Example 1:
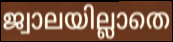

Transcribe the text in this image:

ജ്വാലയില്ലാതെ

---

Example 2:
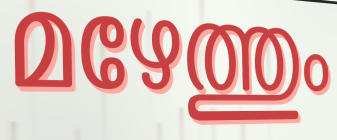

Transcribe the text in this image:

മഴേത്തും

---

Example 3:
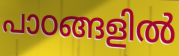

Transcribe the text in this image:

പാഠങ്ങളിൽ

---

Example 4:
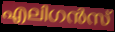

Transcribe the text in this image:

എലിഗൻസ്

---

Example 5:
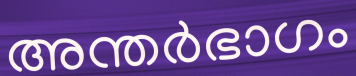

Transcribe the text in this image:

അന്തർഭാഗം